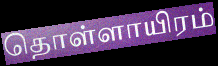
தொள்ளாயிரம்